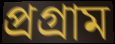
প্ৰগ্ৰাম